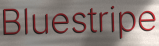
Bluestripe